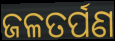
ଜଳତର୍ପଣ